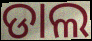
ଡାଲ